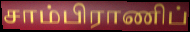
சாம்பிராணிப்